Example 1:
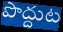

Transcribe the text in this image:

పొద్దుట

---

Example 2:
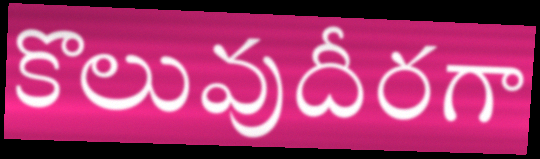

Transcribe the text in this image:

కొలువుదీరగా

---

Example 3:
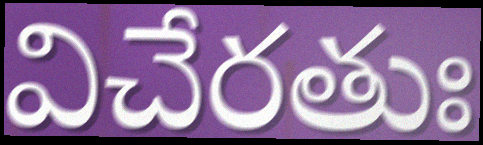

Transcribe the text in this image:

విచేరతుః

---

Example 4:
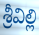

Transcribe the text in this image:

శ్రీవిల్లి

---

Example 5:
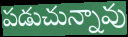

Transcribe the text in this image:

పడుచున్నావు